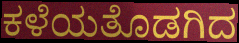
ಕಳೆಯತೊಡಗಿದ